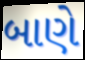
બાણે